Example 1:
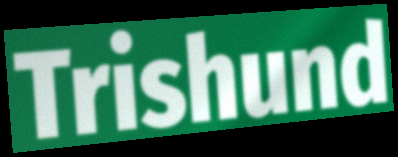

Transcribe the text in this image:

Trishund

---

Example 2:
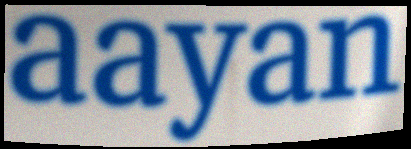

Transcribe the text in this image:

aayan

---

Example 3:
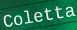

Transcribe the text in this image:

Coletta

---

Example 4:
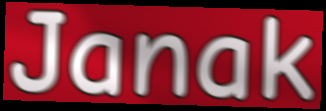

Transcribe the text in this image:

Janak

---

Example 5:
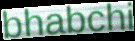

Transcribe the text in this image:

bhabchi